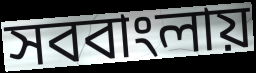
সববাংলায়